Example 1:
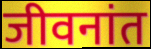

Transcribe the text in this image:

जीवनांत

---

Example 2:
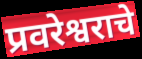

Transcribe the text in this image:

प्रवरेश्वराचे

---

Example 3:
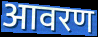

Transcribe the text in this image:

आवरण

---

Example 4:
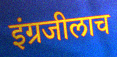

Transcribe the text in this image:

इंग्रजीलाच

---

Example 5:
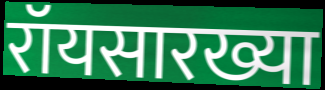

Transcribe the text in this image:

रॉयसारख्या